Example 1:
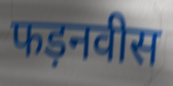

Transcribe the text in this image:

फड़नवीस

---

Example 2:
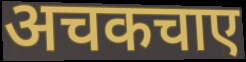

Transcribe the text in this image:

अचकचाए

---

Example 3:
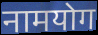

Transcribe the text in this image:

नामयोग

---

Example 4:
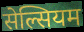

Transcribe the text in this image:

सेल्सियम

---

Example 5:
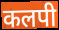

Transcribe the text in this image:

कलपी